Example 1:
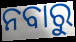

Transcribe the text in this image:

ନବାରୁ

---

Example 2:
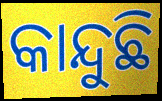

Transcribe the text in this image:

କାନ୍ଦୁଛି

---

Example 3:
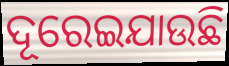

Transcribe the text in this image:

ଦୂରେଇଯାଉଛି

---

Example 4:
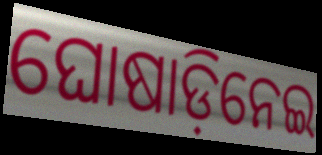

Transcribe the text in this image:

ଘୋଷାଡ଼ିନେଇ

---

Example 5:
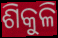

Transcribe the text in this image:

ଶିକୁଳି